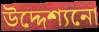
উদ্দেশ্যনো